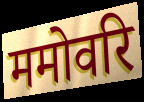
ममोवरि